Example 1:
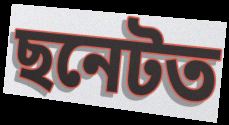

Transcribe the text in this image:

ছনেটত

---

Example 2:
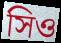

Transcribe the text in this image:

সিও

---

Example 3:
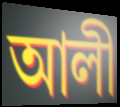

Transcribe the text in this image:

আলী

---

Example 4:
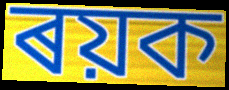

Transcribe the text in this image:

ৰয়ক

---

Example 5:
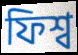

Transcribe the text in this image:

ফিশ্ব